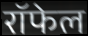
रॉफेल